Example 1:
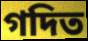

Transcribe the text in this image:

গদিত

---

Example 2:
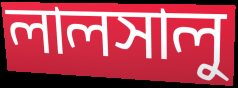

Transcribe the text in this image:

লালসালু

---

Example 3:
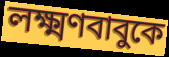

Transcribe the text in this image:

লক্ষ্মণবাবুকে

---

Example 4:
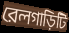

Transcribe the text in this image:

রেলগাড়িটি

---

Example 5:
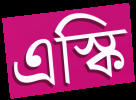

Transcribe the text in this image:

এস্কি